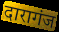
दारागंज